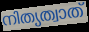
നിത്യത്വാത്